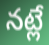
నట్లే